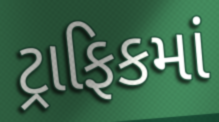
ટ્રાફિકમાં